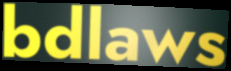
bdlaws